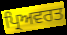
ਪ੍ਰਿਅਵਰਤ